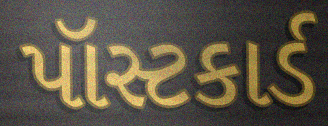
પૉસ્ટકાર્ડ